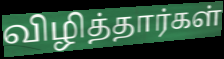
விழித்தார்கள்